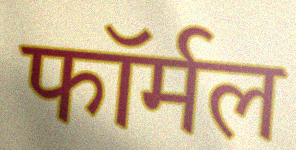
फॉर्मल